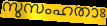
സുസംഹതാഃ